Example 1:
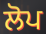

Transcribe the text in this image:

ਲੋਪ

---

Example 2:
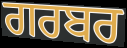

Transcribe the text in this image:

ਗਰਬਰ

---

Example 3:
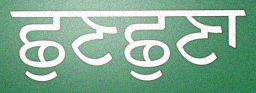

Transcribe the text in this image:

ਛੁਣਛੁਣਾ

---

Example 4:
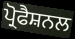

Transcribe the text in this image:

ਪ੍ਰੋਫੈਸ਼ਨਲ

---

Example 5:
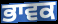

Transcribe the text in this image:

ਭਾਵਕ